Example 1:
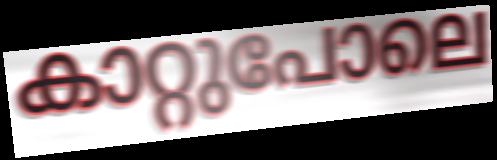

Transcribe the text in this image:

കാറ്റുപോലെ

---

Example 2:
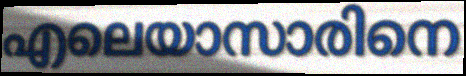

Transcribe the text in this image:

എലെയാസാരിനെ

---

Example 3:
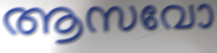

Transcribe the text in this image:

ആസവോ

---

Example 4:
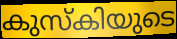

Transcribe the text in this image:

കുസ്കിയുടെ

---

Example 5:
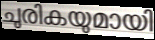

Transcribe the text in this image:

ചുരികയുമായി